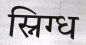
स्निग्ध